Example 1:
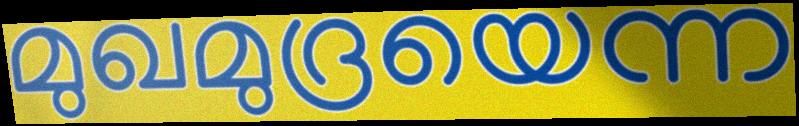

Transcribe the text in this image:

മുഖമുദ്രയെന്ന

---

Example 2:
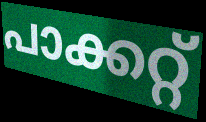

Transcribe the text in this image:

പാക്കറ്റ്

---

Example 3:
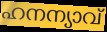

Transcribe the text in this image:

ഹനന്യാവ്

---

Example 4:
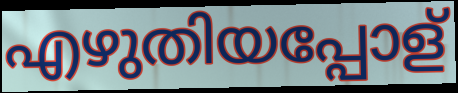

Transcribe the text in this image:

എഴുതിയപ്പോള്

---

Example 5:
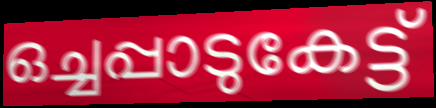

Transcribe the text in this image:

ഒച്ചപ്പാടുകേട്ട്